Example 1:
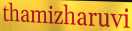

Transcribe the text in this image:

thamizharuvi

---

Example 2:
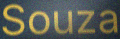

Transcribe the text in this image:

Souza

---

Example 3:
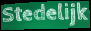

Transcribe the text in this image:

Stedelijk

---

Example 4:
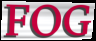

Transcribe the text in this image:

FOG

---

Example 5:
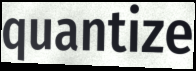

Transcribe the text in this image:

quantize